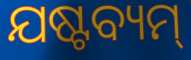
ଯଷ୍ଟବ୍ୟମ୍